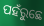
ପହଁରୁଛେ